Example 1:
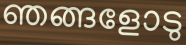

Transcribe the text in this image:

ഞങ്ങളോടു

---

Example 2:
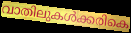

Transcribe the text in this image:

വാതിലുകൾക്കരികെ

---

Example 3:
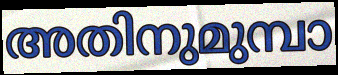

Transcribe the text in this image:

അതിനുമുമ്പാ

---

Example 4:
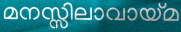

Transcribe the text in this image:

മനസ്സിലാവായ്മ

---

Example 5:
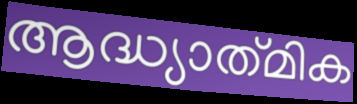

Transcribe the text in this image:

ആദ്ധ്യാത്‌മിക